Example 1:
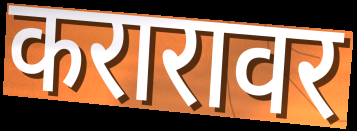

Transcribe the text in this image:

करारावर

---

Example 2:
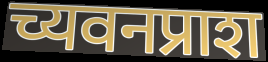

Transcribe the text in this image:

च्यवनप्राश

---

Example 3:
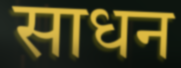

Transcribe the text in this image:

साधन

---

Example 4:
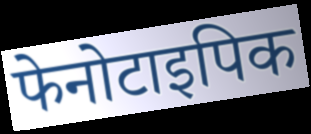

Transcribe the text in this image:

फेनोटाइपिक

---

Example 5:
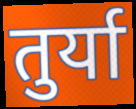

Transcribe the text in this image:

तुर्या